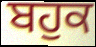
ਬਹੁਕ